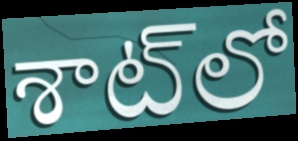
శాట్‌లో